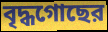
বৃদ্ধগোছের